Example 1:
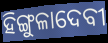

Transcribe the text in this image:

ହିଙ୍ଗୁଳାଦେବୀ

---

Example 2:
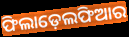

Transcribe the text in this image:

ଫିଲାଡ଼େଲଫିଆର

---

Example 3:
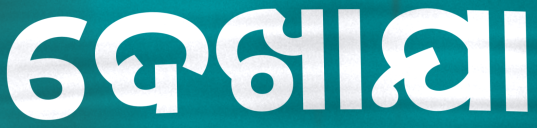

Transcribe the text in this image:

ଦେଖାଯା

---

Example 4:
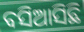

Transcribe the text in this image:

ବସିଆସିଛି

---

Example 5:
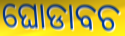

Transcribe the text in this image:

ଘୋଡାବଚ